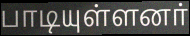
பாடியுள்ளனர்